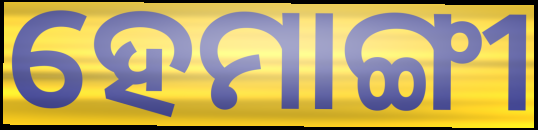
ହେମାଙ୍ଗୀ